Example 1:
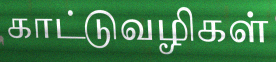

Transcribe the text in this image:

காட்டுவழிகள்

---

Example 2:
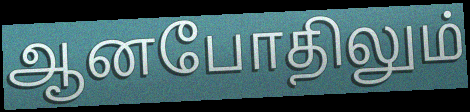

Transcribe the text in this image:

ஆனபோதிலும்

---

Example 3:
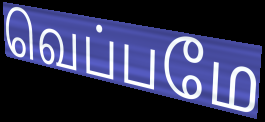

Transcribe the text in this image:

வெப்பமே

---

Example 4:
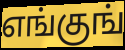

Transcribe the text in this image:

எங்குங்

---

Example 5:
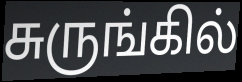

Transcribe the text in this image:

சுருங்கில்